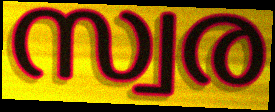
സ്വര